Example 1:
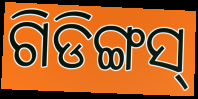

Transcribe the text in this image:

ଗିଡିଙ୍ଗସ୍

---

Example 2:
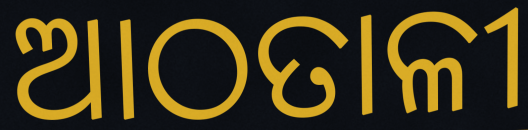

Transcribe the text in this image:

ଆଠତାଳୀ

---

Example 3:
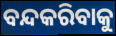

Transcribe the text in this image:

ବନ୍ଦକରିବାକୁ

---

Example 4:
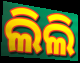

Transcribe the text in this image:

ଲିଲି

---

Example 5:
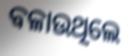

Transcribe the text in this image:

ବଳାଉଥିଲେ